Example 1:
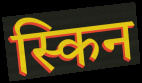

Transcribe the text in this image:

स्‍किन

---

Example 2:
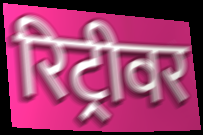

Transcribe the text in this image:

रिट्रीवर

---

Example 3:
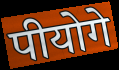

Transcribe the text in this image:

पीयोगे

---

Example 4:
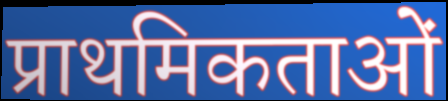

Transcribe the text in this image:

प्राथमिकताओं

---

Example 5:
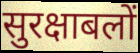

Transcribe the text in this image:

सुरक्षाबलों